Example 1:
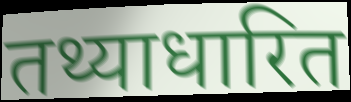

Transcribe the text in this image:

तथ्याधारित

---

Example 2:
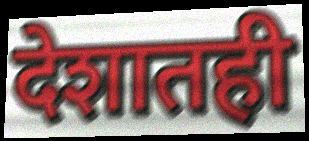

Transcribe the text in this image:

देशातही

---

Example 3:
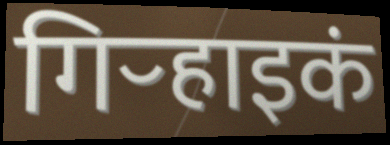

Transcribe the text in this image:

गिऱ्हाइकं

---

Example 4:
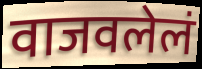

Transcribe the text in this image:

वाजवलेलं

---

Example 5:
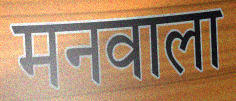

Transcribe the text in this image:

मनवाला